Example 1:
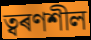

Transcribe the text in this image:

ত্বৰণশীল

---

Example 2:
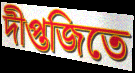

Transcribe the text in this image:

দীপ্তজিতে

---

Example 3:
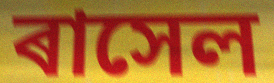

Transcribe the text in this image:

ৰাসেল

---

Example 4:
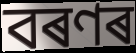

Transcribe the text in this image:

বৰণৰ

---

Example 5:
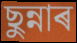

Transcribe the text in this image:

ছুন্নাৰ